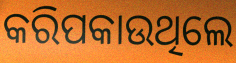
କରିପକାଉଥିଲେ